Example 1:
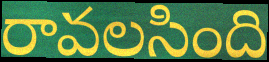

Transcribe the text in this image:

రావలసింది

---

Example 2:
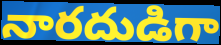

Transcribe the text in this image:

నారదుడిగా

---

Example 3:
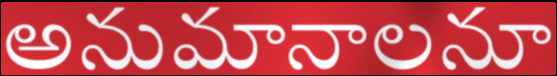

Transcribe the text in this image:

అనుమానాలనూ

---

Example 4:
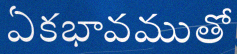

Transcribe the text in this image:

ఏకభావముతో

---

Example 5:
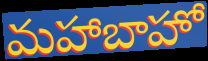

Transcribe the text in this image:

మహాబాహో